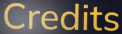
Credits